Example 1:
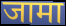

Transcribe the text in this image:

जामा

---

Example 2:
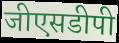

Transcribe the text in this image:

जीएसडीपी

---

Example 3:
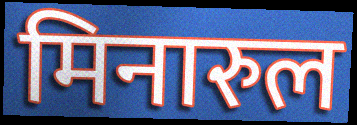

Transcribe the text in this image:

मिनारुल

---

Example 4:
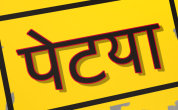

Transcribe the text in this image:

पेटया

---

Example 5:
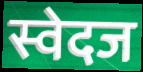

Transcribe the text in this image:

स्वेदज